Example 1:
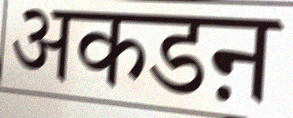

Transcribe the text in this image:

अकडऩ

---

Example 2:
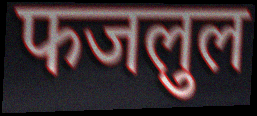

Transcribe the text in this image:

फजलुल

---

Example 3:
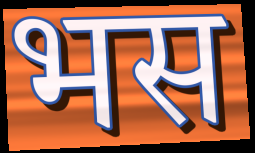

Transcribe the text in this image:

भस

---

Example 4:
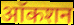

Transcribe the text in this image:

ऑकशन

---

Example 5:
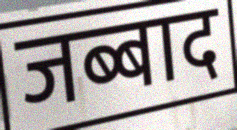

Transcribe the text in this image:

जब्बाद